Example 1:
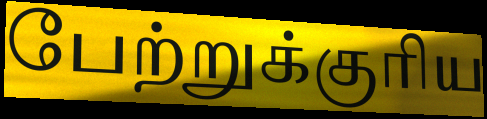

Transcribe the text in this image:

பேற்றுக்குரிய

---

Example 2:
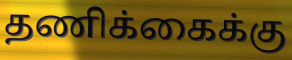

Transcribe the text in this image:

தணிக்கைக்கு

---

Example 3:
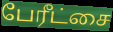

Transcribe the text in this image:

பேரீட்சை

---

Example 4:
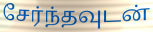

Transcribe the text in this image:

சேர்ந்தவுடன்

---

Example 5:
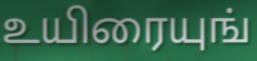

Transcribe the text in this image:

உயிரையுங்